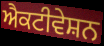
ਐਕਟੀਵੇਸ਼ਨ